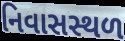
નિવાસસ્થળ